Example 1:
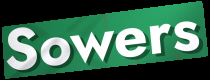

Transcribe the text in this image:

Sowers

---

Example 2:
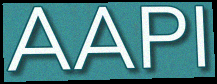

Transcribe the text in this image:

AAPI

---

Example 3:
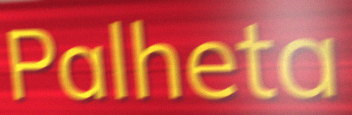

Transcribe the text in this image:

Palheta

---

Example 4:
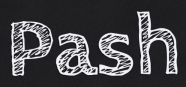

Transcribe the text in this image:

Pash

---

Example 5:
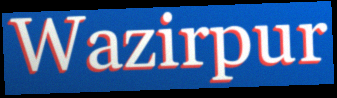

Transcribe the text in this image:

Wazirpur